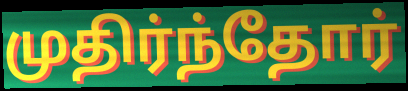
முதிர்ந்தோர்